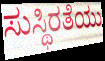
ಸುಸ್ಥಿರತೆಯು